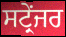
ਸਟ੍ਰੇਂਜਰ